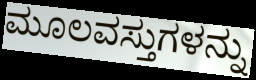
ಮೂಲವಸ್ತುಗಳನ್ನು